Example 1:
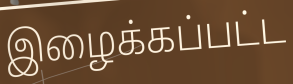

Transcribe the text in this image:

இழைக்கப்பட்ட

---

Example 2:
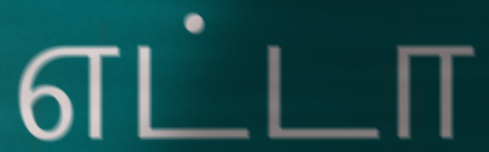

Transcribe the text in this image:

எட்டா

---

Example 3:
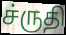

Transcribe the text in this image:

ச்ருதி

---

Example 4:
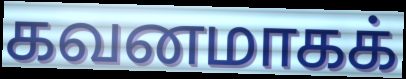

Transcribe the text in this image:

கவனமாகக்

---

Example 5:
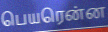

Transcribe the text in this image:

பெயரென்ன